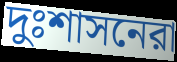
দুঃশাসনেরা